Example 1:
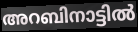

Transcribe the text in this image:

അറബിനാട്ടിൽ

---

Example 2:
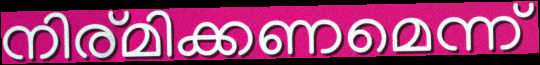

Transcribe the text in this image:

നിര്മിക്കണമെന്ന്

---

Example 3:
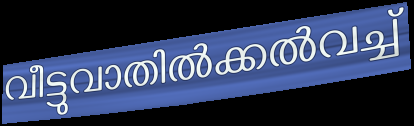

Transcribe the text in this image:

വീട്ടുവാതിൽക്കൽവച്ച്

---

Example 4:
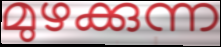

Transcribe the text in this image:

മുഴക്കുന്ന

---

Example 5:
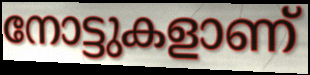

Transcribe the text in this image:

നോട്ടുകളാണ്